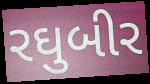
રઘુબીર